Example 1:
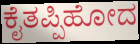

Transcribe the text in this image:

ಕೈತಪ್ಪಿಹೋದ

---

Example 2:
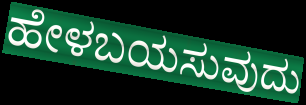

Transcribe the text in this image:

ಹೇಳಬಯಸುವುದು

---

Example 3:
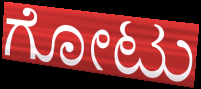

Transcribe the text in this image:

ಗೋಟು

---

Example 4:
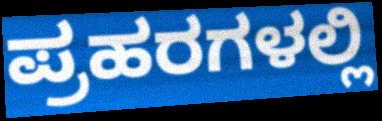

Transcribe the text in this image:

ಪ್ರಹರಗಳಲ್ಲಿ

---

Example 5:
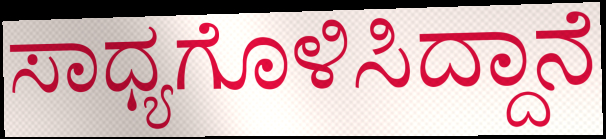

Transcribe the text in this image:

ಸಾಧ್ಯಗೊಳಿಸಿದ್ದಾನೆ